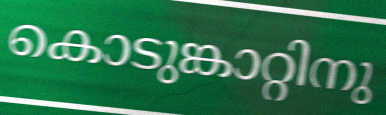
കൊടുങ്കാറ്റിനു